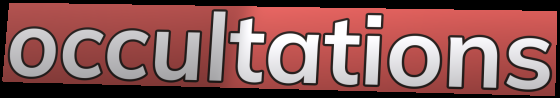
occultations